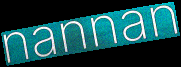
nannan